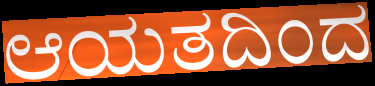
ಆಯತದಿಂದ